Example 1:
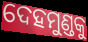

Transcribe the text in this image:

ଦେହମୁଣ୍ଡକୁ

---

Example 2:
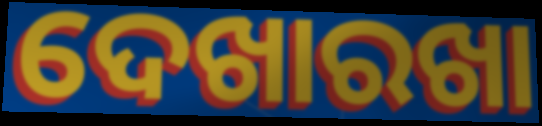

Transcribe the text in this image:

ଦେଖାରଖା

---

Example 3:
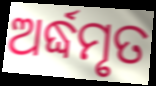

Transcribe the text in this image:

ଅର୍ଦ୍ଧମୃତ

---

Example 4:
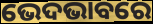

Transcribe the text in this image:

ଭେଦଭାବରେ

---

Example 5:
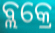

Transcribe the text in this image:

ବ୍ଲକ୍ରେ